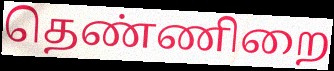
தெண்ணிறை